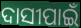
ଦାସୀପାଇଁ